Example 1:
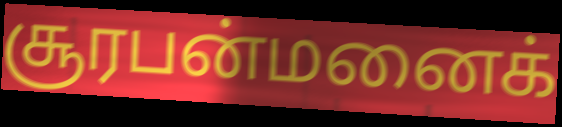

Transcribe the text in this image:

சூரபன்மனைக்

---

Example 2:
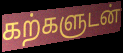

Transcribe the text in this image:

கற்களுடன்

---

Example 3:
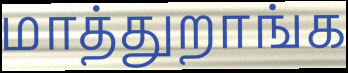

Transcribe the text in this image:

மாத்துறாங்க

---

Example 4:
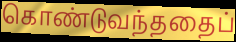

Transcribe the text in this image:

கொண்டுவந்ததைப்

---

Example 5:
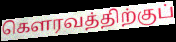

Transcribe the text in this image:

கௌரவத்திற்குப்